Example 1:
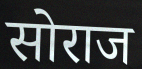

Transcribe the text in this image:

सोराज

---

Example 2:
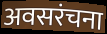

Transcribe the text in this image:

अवसरंचना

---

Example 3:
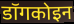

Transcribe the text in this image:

डॉगकोइन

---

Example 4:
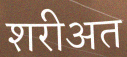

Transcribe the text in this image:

शरीअत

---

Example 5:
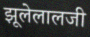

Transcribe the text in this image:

झूलेलालजी